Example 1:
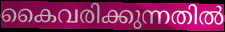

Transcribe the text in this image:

കൈവരിക്കുന്നതിൽ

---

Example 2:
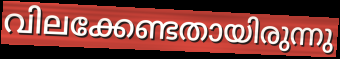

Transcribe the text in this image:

വിലക്കേണ്ടതായിരുന്നു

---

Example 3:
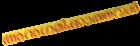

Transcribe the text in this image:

അനുഗമിക്കാത്തവൻ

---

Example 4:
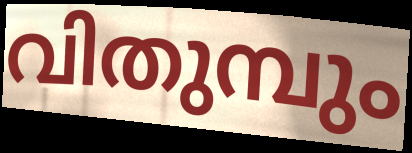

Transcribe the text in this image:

വിതുമ്പും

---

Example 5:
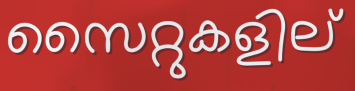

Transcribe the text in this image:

സൈറ്റുകളില്